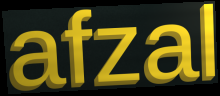
afzal